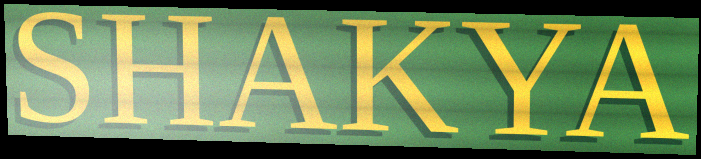
SHAKYA